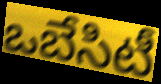
ఒబేసిటీ